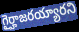
గైర్హాజరయ్యారని